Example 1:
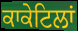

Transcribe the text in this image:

ਕਾਕੇਟਿਲਾਂ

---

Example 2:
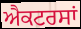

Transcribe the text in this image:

ਐਕਟਰਸਾਂ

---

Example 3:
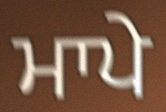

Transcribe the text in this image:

ਮਾਪੇ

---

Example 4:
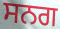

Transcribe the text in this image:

ਸਨਗ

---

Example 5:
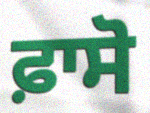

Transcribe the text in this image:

ਫ਼ਾਸੋ